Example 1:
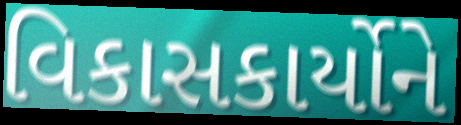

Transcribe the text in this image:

વિકાસકાર્યોને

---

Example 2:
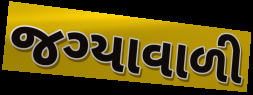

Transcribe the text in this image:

જગ્યાવાળી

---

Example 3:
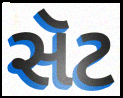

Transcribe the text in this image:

સૅટ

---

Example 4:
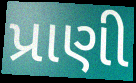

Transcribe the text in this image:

પ્રાણી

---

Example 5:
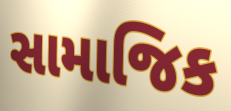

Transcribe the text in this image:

સામાજિક